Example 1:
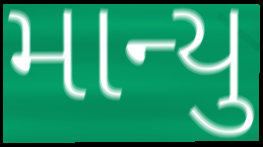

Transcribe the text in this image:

માન્યુ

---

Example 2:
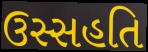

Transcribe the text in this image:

ઉસ્સહતિ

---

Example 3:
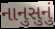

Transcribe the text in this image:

નાનુસુનું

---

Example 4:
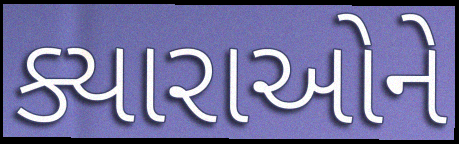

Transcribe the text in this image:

ક્યારાઓને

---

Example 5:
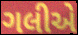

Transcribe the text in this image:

ગલીએ